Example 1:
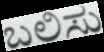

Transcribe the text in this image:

ಬಲಿಸು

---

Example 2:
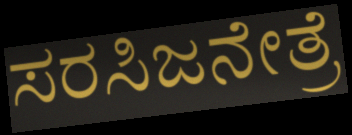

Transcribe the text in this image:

ಸರಸಿಜನೇತ್ರೆ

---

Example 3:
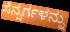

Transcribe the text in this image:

ಸೆನ್ಸರ್ಗಳನ್ನು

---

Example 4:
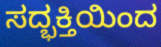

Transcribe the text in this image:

ಸದ್ಭಕ್ತಿಯಿಂದ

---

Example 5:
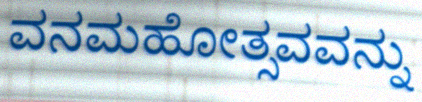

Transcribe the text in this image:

ವನಮಹೋತ್ಸವವನ್ನು